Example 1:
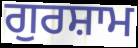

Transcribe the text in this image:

ਗੁਰਸ਼ਾਮ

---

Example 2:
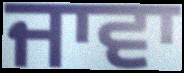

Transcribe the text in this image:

ਜਾਵਾ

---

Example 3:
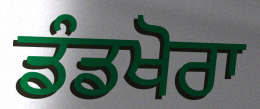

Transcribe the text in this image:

ਡੰਡਖੋਰਾ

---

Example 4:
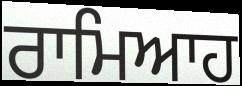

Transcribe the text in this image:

ਰਾਮਿਆਹ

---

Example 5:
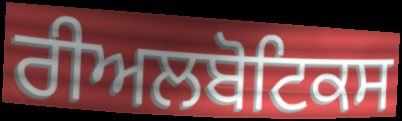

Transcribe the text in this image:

ਰੀਅਲਬੋਟਿਕਸ